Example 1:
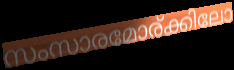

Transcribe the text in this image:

സംസാരമോര്ക്കിലോ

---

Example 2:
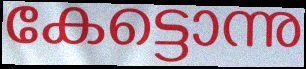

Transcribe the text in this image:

കേട്ടൊന്നു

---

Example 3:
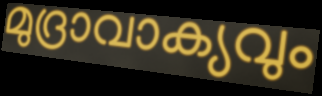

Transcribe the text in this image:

മുദ്രാവാക്യവും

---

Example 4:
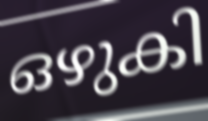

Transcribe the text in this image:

ഒഴുകി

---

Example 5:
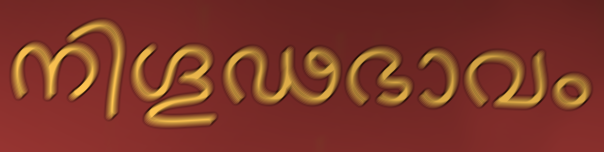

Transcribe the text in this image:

നിഗൂഢഭാവം